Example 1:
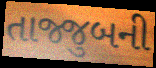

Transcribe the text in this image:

તાજ્જુબની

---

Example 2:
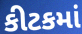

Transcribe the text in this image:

કીટકમાં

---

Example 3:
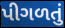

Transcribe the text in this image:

પીગળતું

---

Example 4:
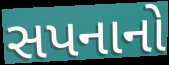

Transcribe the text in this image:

સપનાનો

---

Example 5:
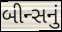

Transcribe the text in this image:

બીન્સનું